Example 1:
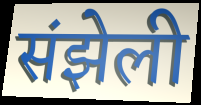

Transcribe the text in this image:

संझेली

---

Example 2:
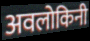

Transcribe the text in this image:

अवलोकिनी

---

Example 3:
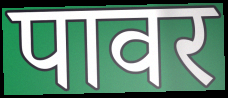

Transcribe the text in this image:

पावर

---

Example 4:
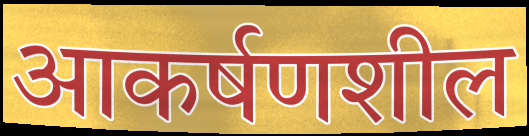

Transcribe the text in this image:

आकर्षणशील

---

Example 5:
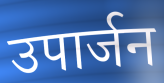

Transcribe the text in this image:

उपार्जन